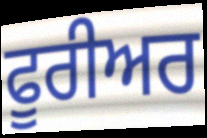
ਫੂਰੀਅਰ